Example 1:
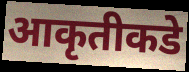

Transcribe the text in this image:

आकृतीकडे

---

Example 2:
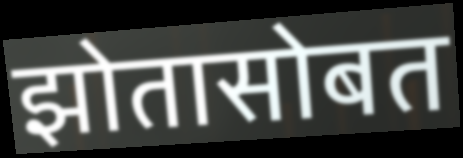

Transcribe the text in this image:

झोतासोबत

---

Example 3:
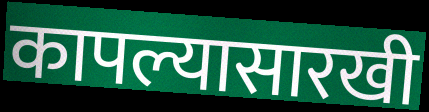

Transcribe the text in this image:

कापल्यासारखी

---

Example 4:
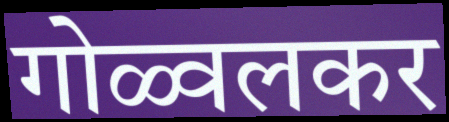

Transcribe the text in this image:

गोळ्वलकर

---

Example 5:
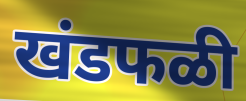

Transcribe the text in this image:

खंडफळी